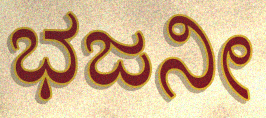
ಭಜನೀ